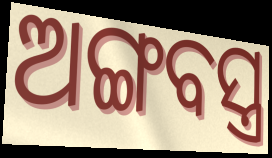
ଅଙ୍ଗବସ୍ତ୍ର